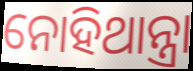
ନୋହିଥାନ୍ତ୍ରା